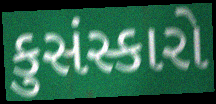
કુસંસ્કારો